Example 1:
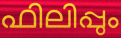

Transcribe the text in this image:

ഫിലിപ്പും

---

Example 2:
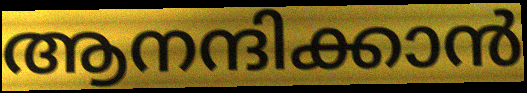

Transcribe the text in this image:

ആനന്ദിക്കാൻ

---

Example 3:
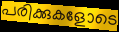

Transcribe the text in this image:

പരിക്കുകളോടെ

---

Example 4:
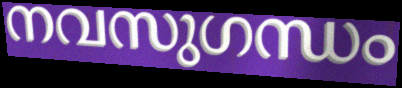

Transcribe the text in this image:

നവസുഗന്ധം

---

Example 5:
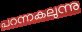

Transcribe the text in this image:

പറന്നകലുന്നു